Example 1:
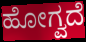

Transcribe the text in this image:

ಹೋಗ್ವದೆ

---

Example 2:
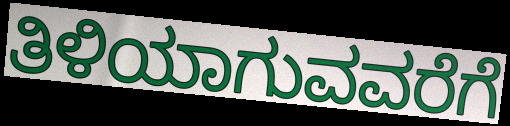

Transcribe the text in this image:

ತಿಳಿಯಾಗುವವರೆಗೆ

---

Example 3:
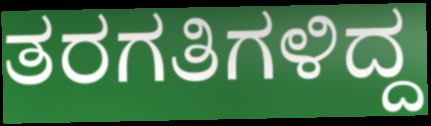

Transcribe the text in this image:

ತರಗತಿಗಳಿದ್ದ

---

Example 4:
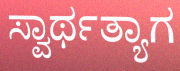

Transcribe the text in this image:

ಸ್ವಾರ್ಥತ್ಯಾಗ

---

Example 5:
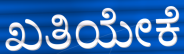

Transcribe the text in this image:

ಖತಿಯೇಕೆ